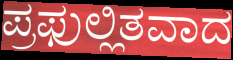
ಪ್ರಫುಲ್ಲಿತವಾದ